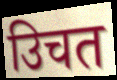
उिचत